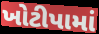
ખોટીપામાં